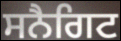
ਸਨੈਗਿਟ